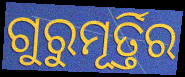
ଗୁରୁମୂର୍ତ୍ତିର